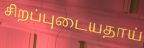
சிறப்புடையதாய்